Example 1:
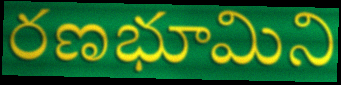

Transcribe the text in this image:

రణభూమిని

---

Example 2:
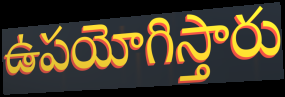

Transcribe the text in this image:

ఉపయోగిస్తారు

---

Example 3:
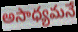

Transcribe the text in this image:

అసాధ్యమనే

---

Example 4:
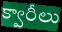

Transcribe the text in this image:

క్వారీలు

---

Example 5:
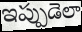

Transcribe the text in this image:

ఇప్పుడెలా